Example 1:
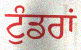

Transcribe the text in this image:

ਟੁੰਡਰਾਂ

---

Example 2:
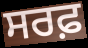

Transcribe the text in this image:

ਸਰਫ਼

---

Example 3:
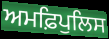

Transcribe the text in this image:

ਅਮਫ਼ਿਪੁਲਿਸ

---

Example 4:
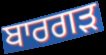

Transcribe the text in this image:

ਬਾਰਗੜ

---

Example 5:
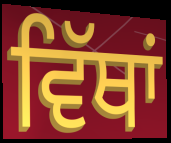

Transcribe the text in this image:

ਵਿੱਥਾਂ